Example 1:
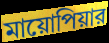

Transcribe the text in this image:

মায়োপিয়ার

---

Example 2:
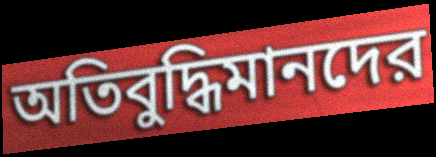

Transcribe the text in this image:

অতিবুদ্ধিমানদের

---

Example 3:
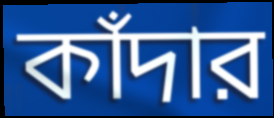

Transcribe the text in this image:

কাঁদার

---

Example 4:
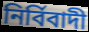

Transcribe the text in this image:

নির্বিবাদী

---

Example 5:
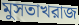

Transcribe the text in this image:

মুসতাখরাজ